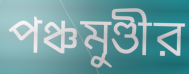
পঞ্চমুণ্ডীর